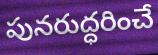
పునరుద్ధరించే